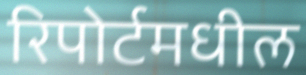
रिपोर्टमधील